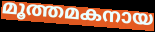
മൂത്തമകനായ